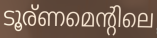
ടൂര്ണമെന്റിലെ